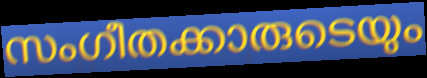
സംഗീതക്കാരുടെയും